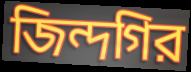
জিন্দগির